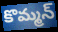
కొమ్మన్